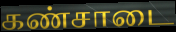
கண்சாடை